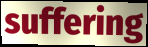
suffering